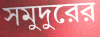
সমুদুরের